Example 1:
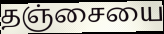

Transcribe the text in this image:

தஞ்சையை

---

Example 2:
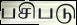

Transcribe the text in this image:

பசிபடு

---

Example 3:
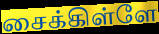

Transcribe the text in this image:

சைக்கிள்ளே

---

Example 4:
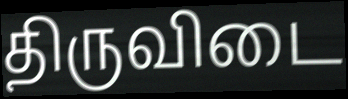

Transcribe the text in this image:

திருவிடை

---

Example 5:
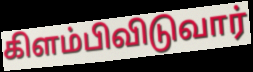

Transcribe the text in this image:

கிளம்பிவிடுவார்